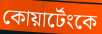
কোয়ার্টেংকে